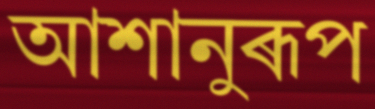
আশানুৰূপ